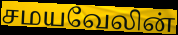
சமயவேலின்